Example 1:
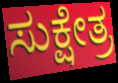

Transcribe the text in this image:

ಸುಕ್ಷೇತ್ರ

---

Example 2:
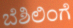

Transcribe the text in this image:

ಬೆಶಿಲಿಂಗೆ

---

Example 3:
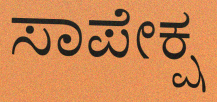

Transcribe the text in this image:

ಸಾಪೇಕ್ಷ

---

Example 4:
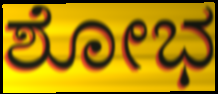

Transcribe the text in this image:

ಶೋಭ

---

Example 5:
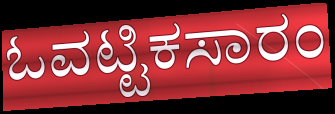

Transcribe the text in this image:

ಓವಟ್ಟಿಕಸಾರಂ